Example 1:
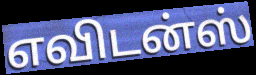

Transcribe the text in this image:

எவிடன்ஸ்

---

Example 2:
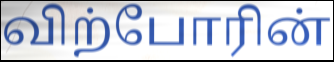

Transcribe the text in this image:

விற்போரின்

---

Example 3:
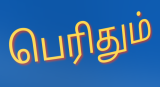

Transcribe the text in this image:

பெரிதும்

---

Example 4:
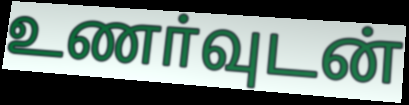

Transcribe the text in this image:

உணர்வுடன்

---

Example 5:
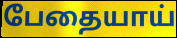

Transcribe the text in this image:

பேதையாய்